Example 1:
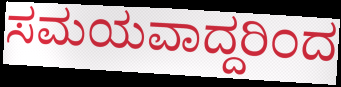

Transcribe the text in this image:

ಸಮಯವಾದ್ದರಿಂದ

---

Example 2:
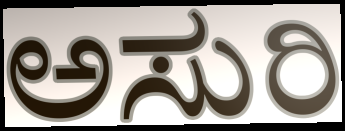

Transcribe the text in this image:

ಅಸುರಿ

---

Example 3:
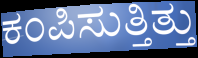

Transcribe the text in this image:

ಕಂಪಿಸುತ್ತಿತ್ತು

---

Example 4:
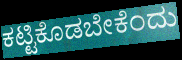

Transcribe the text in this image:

ಕಟ್ಟಿಕೊಡಬೇಕೆಂದು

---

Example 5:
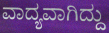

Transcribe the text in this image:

ವಾದ್ಯವಾಗಿದ್ದು